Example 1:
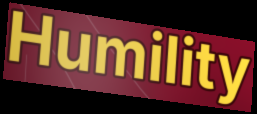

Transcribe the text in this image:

Humility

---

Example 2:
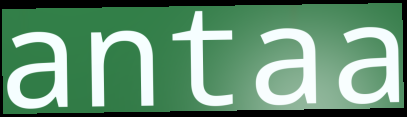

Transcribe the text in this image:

antaa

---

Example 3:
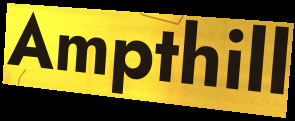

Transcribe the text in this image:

Ampthill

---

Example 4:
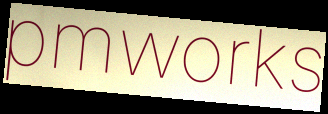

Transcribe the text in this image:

pmworks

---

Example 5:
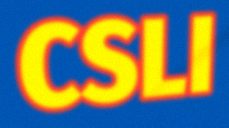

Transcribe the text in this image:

CSLI